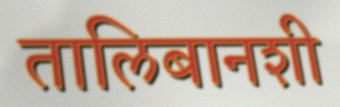
तालिबानशी